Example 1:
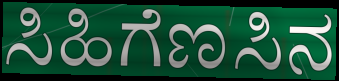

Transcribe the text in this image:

ಸಿಹಿಗೆಣಸಿನ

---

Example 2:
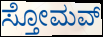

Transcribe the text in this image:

ಸ್ತೋಮವ್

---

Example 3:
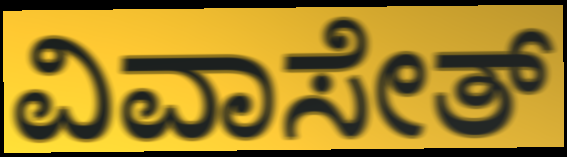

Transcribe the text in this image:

ವಿವಾಸೇತ್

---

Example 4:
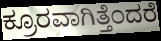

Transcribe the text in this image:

ಕ್ರೂರವಾಗಿತ್ತೆಂದರೆ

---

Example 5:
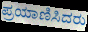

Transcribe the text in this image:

ಪ್ರಯಾಣಿಸಿದರು